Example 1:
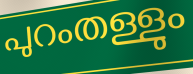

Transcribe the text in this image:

പുറംതള്ളും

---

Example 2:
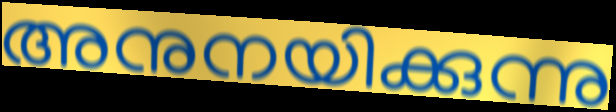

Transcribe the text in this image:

അനുനയിക്കുന്നു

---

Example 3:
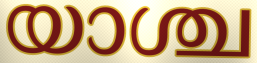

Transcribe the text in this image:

യാശ്ച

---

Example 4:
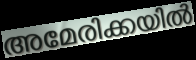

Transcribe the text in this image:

അമേരിക്കയിൽ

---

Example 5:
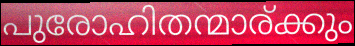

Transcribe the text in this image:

പുരോഹിതന്മാര്ക്കും